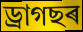
ড্ৰাগছৰ